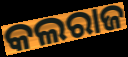
କଲରାଜ